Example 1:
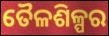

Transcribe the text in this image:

ତୈଳଶିଳ୍ପର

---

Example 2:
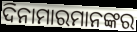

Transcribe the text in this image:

ଦିନାମାରମାନଙ୍କର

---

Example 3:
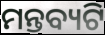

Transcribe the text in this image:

ମନ୍ତବ୍ୟଟି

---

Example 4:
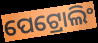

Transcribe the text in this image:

ପେଟ୍ରୋଲିଂ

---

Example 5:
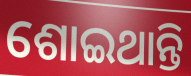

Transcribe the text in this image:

ଶୋଇଥାନ୍ତି